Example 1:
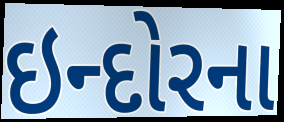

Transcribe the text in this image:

ઇન્દોરના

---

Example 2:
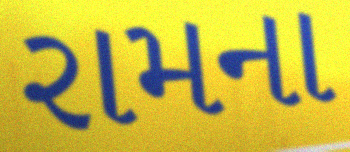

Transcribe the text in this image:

રામના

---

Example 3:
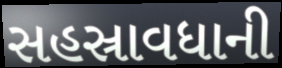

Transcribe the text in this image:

સહસ્રાવધાની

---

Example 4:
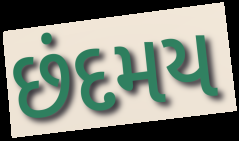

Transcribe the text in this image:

છંદમય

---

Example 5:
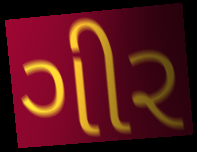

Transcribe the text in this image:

ગીર